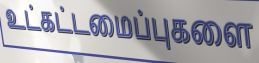
உட்கட்டமைப்புகளை